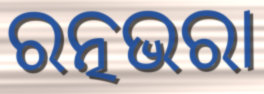
ରତ୍ନଭରା